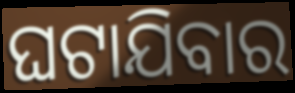
ଘଟାଯିବାର